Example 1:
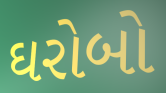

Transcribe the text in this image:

ઘરોબો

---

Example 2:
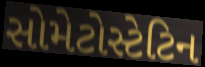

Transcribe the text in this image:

સોમેટોસ્ટેટિન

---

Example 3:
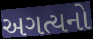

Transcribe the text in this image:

અગત્યનો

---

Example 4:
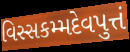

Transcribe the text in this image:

વિસ્સકમ્મદેવપુત્તં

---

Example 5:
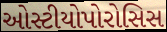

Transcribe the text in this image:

ઓસ્ટીયોપોરોસિસ